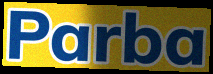
Parba